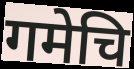
गमेचि